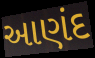
આણંદ